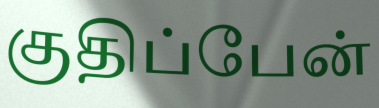
குதிப்பேன்